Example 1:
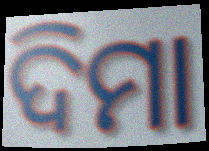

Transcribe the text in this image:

ଦିମା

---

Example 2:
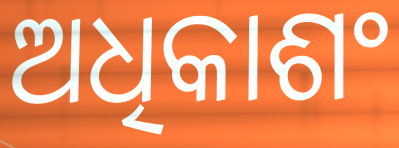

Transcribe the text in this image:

ଅଧିକାଶଂ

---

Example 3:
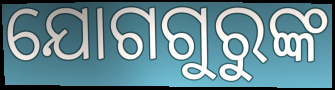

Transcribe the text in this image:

ଯୋଗଗୁରୁଙ୍କ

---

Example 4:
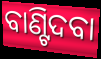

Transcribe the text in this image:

ବାଣ୍ଟିଦବା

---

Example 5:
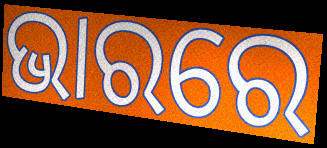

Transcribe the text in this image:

ଭାରରେ